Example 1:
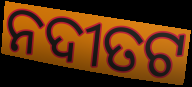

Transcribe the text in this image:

ନଦୀତଟ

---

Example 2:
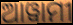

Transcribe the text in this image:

ଆୱାମୀ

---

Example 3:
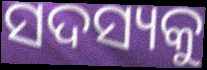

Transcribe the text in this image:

ସଦସ୍ୟକୁ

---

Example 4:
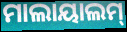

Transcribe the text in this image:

ମାଲାୟାଲମ୍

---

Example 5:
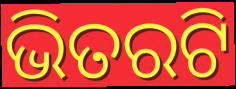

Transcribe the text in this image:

ଭିତରଟି